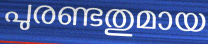
പുരണ്ടതുമായ